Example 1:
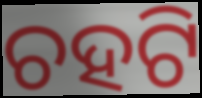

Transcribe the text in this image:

ଚହଟି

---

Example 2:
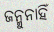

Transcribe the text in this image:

ଜନ୍ମୁନାହିଁ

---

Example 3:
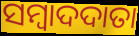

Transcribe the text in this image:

ସମ୍ବାଦଦାତା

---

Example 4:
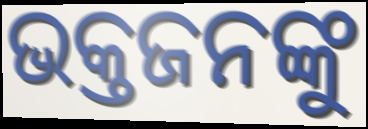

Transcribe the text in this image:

ଭକ୍ତଜନଙ୍କୁ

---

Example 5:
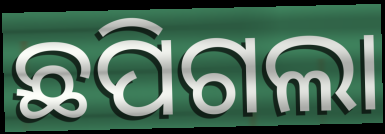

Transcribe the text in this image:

ଛପିଗଲା